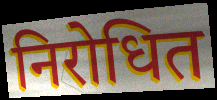
निरोधित